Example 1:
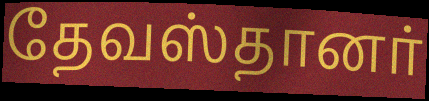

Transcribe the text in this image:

தேவஸ்தானர்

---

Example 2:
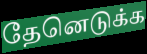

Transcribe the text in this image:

தேனெடுக்க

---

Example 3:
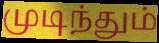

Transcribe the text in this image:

முடிந்தும்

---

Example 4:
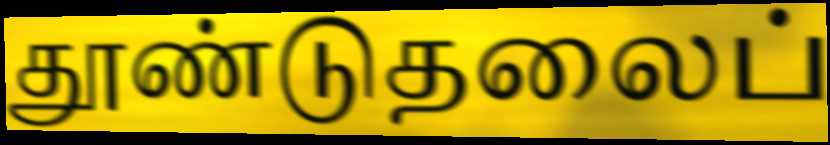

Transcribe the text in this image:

தூண்டுதலைப்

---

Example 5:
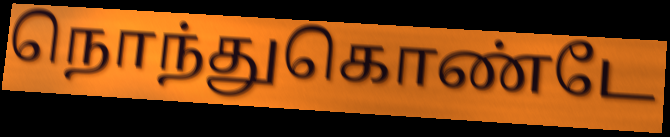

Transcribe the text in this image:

நொந்துகொண்டே